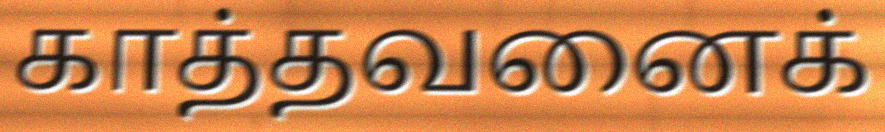
காத்தவனைக்